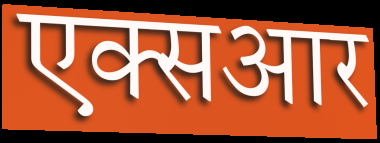
एक्सआर